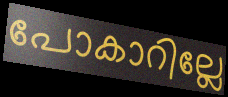
പോകാറില്ലേ